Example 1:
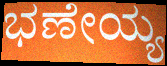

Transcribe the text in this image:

ಭಣೇಯ್ಯ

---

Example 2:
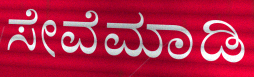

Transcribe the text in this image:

ಸೇವೆಮಾಡಿ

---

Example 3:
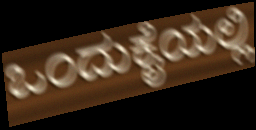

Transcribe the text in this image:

ಒಂದುಕೈಯಲ್ಲಿ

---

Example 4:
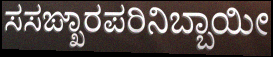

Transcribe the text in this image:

ಸಸಙ್ಖಾರಪರಿನಿಬ್ಬಾಯೀ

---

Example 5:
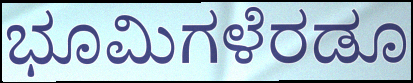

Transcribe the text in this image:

ಭೂಮಿಗಳೆರಡೂ